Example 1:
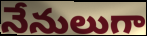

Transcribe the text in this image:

నేనులుగా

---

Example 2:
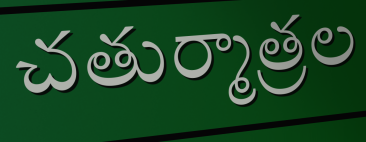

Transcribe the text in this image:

చతుర్మాత్రల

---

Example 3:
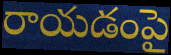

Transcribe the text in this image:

రాయడంపై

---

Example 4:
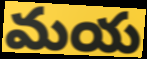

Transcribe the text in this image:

మయ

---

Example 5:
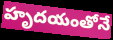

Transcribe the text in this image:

హృదయంతోనే